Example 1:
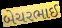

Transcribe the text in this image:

બેચરભાઈ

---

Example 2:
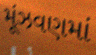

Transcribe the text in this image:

મૂંઝવણમાં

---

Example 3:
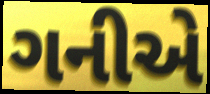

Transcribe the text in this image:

ગનીએ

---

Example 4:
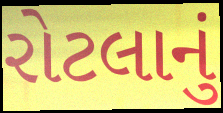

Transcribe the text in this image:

રોટલાનું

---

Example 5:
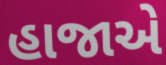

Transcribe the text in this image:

હાજાએ